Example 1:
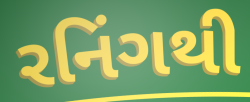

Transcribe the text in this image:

રનિંગથી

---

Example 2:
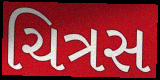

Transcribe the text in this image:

ચિત્રસ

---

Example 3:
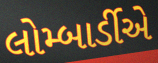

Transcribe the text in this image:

લોમ્બાર્ડીએ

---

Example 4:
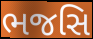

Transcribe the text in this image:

ભજસિ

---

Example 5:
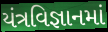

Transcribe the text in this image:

યંત્રવિજ્ઞાનમાં